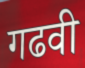
गढवी